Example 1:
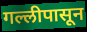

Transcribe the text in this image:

गल्लीपासून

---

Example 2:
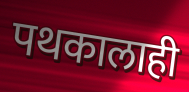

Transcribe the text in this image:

पथकालाही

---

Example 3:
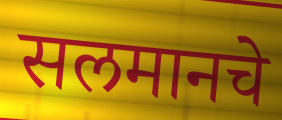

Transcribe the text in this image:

सलमानचे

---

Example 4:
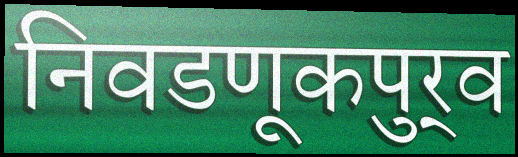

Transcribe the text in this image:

निवडणूकपुर्व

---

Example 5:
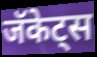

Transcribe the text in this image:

जॅकेट्स